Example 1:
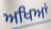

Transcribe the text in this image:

ਅਖਿਆਂ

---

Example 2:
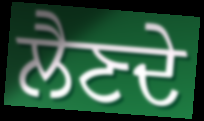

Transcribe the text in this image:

ਲੈਣਦੇ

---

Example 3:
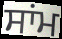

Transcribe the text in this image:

ਸਾਂਮ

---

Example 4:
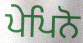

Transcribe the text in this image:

ਪੇਪਿਨੋ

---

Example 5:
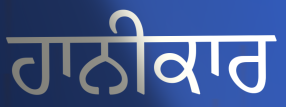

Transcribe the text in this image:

ਹਾਨੀਕਾਰ